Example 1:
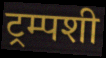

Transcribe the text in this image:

ट्रम्पशी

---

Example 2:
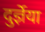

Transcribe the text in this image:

दुर्ज्ञेया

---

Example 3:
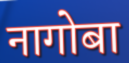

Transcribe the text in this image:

नागोबा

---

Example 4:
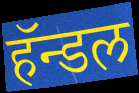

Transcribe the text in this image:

हॅन्डल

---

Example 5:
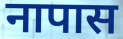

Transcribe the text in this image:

नापास